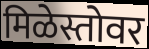
मिळेस्तोवर